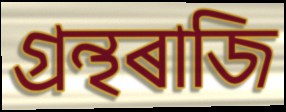
গ্ৰন্থৰাজি